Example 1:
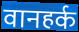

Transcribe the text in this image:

वानहर्क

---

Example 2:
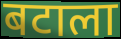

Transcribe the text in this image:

बटाला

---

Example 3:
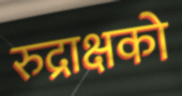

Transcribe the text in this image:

रुद्राक्षको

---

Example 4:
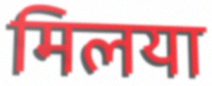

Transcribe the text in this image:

मिलया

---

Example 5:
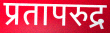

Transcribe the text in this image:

प्रतापरुद्र